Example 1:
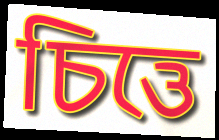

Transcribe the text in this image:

চিত্তে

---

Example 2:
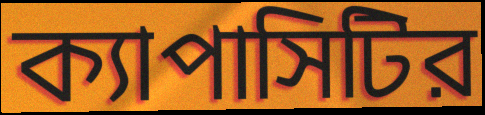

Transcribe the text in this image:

ক্যাপাসিটির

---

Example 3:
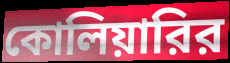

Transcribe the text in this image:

কোলিয়ারির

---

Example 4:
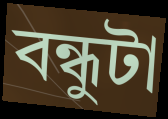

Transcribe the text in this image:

বন্ধুটা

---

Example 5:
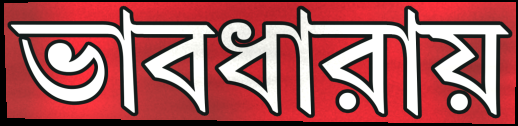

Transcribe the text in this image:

ভাবধারায়